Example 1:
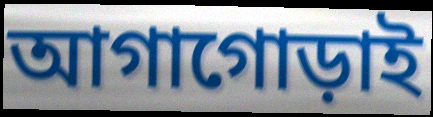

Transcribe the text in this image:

আগাগোড়াই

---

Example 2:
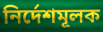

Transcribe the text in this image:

নির্দেশমূলক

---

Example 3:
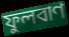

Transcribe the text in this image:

ফুলবাণ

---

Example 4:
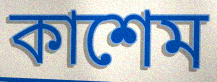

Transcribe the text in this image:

কাশেম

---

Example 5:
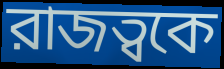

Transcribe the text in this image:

রাজত্বকে